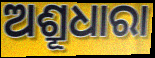
ଅଶ୍ରୂଧାରା